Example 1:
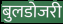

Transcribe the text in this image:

बुलडोजरी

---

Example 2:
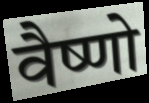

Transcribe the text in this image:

वैष्‍णो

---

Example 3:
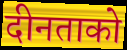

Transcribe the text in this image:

दीनताको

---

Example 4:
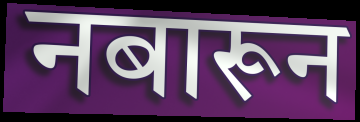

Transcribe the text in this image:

नबारून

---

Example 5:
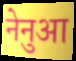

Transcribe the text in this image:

नेनुआ